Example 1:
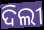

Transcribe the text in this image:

ଦିଲୀ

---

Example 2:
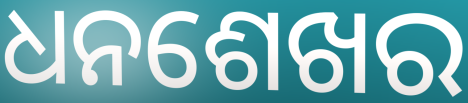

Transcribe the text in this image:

ଧନଶେଖର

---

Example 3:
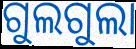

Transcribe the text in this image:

ଗୁଲଗୁଲା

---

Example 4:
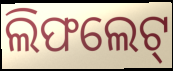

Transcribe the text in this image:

ଲିଫଲେଟ୍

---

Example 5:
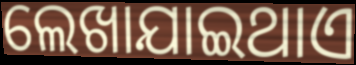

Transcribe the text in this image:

ଲେଖାଯାଇଥାଏ